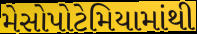
મેસોપોટેમિયામાંથી